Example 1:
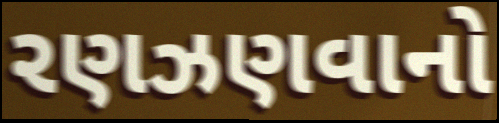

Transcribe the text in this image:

રણઝણવાનો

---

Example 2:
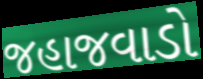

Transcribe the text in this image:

જહાજવાડો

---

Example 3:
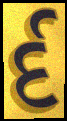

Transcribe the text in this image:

ર્દ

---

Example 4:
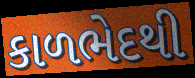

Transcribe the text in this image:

કાળભેદથી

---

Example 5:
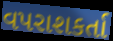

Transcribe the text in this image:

વપરાશકર્તા